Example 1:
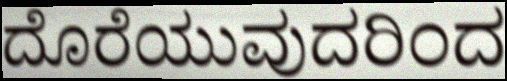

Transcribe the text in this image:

ದೊರೆಯುವುದರಿಂದ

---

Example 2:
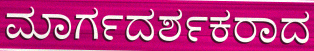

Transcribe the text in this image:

ಮಾರ್ಗದರ್ಶಕರಾದ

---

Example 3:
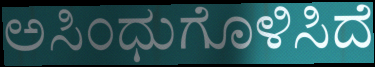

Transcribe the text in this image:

ಅಸಿಂಧುಗೊಳಿಸಿದೆ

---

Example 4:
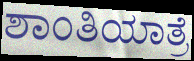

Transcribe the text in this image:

ಶಾಂತಿಯಾತ್ರೆ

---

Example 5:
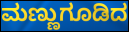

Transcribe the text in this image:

ಮಣ್ಣುಗೂಡಿದ